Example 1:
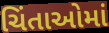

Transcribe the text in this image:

ચિંતાઓમાં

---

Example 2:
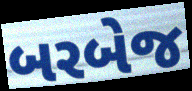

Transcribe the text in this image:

બરબેજ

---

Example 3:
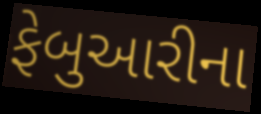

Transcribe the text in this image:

ફેબુઆરીના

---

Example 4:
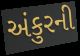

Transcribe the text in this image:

અંકુરની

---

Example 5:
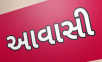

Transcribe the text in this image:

આવાસી